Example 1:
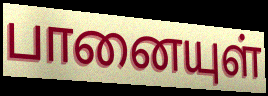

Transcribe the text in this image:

பானையுள்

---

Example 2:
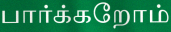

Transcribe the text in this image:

பார்க்கறோம்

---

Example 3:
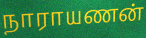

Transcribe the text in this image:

நாராயணன்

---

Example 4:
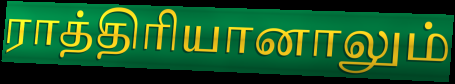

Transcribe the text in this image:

ராத்திரியானாலும்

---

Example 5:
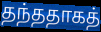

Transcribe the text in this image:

தந்ததாகத்